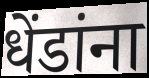
धेंडांना